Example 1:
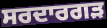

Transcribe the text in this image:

ਸਰਦਾਰਗੜ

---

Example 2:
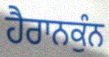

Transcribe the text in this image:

ਹੈਰਾਨਕੁੰਨ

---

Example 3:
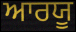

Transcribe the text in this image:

ਆਰਯੂ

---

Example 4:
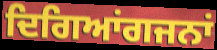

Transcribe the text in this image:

ਦਿਗਿਆਂਗਜਨਾਂ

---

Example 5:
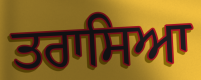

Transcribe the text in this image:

ਤਰਾਸਿਆ